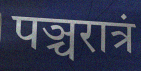
पञ्चरात्रं